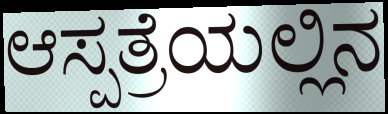
ಆಸ್ಪತ್ರೆಯಲ್ಲಿನ